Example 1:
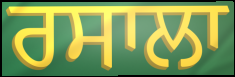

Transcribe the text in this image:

ਰਸਾਲਾ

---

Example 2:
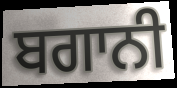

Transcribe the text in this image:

ਬਗਾਨੀ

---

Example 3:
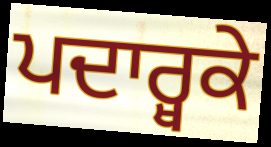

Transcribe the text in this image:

ਪਦਾਰ੍ਥਕੇ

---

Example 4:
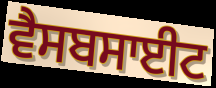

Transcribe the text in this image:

ਵੈਸਬਸਾਈਟ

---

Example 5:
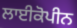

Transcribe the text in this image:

ਲਾਈਕੋਪੀਨ